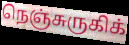
நெஞ்சுருகிக்